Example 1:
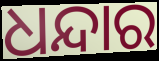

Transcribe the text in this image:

ଧନ୍ଦାର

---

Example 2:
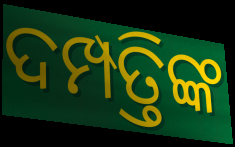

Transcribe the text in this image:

ଦମ୍ପତ୍ତିଙ୍କ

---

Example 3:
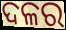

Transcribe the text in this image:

ଦଳର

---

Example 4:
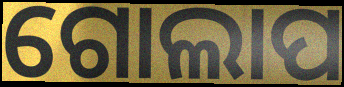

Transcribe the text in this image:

ଗୋଲାପ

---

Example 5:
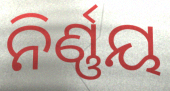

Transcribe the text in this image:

ନିର୍ଣ୍ଣୟ